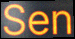
Sen